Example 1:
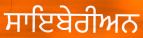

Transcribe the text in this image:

ਸਾਇਬੇਰੀਅਨ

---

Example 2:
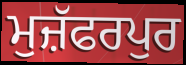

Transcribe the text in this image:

ਮੁਜ਼ੱਫਰਪੁਰ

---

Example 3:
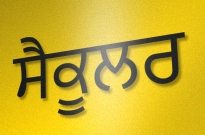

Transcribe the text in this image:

ਸੈਕੂਲਰ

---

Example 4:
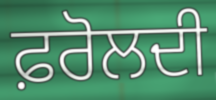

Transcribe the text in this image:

ਫ਼ਰੋਲਦੀ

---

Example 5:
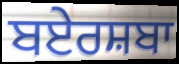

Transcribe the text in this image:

ਬਏਰਸ਼ਬਾ